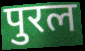
पुरल